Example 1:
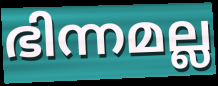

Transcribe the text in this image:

ഭിന്നമല്ല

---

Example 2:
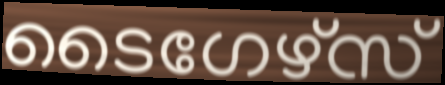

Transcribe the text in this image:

ടൈഗേഴ്സ്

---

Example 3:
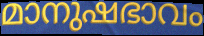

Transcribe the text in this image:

മാനുഷഭാവം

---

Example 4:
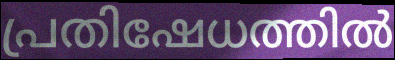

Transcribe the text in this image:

പ്രതിഷേധത്തിൽ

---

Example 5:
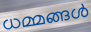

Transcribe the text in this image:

ധമ്മങ്ങൾ